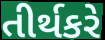
તીર્થકરે